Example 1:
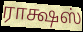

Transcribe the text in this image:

ராக்ஷஸ்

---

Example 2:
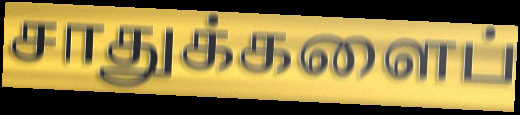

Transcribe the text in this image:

சாதுக்களைப்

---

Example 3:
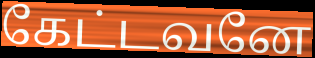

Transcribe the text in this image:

கேட்டவனே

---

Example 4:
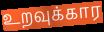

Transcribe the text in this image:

உறவுக்கார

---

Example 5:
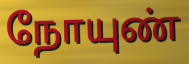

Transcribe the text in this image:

நோயுண்